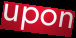
upon